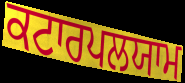
ਕਟਾਰਪਲਯਾਮ